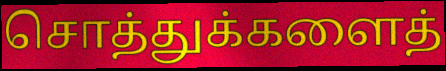
சொத்துக்களைத்